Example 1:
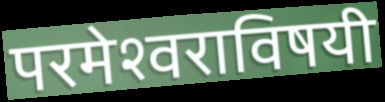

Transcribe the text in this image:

परमेश्वराविषयी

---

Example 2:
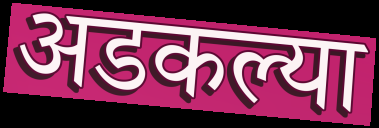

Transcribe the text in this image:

अडकल्या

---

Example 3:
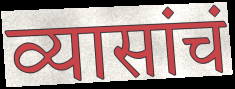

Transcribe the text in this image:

व्यासांचं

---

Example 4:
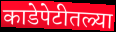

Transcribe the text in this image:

काडेपेटीतल्या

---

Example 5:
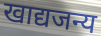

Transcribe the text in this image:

खाद्यजन्य